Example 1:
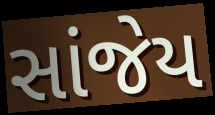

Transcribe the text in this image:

સાંજેય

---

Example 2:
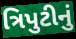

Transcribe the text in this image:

ત્રિપુટીનું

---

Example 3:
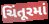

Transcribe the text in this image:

ચિંતૂરમાં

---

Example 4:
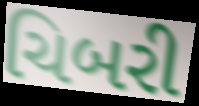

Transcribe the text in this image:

ચિબરી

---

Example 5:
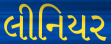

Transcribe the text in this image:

લીનિયર